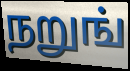
நறுங்